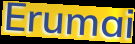
Erumai